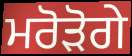
ਮਰੋੜੋਗੇ